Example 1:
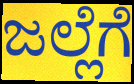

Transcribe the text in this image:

ಜಲ್ಲೆಗೆ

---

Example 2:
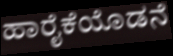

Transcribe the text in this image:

ಹಾರೈಕೆಯೊಡನೆ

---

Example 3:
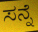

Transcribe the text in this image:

ಸನ್ನೆ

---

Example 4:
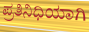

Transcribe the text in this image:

ಪ್ರತಿನಿಧಿಯಾಗಿ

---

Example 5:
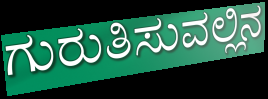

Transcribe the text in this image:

ಗುರುತಿಸುವಲ್ಲಿನ